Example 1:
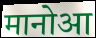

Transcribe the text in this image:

मानोआ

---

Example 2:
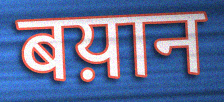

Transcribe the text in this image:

बय़ान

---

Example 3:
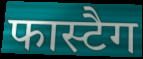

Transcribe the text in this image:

फास्‍टैग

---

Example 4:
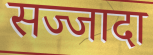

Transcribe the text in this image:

सज्जादा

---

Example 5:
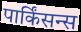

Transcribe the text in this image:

पार्किंसन्स